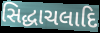
સિદ્ધાચલાદિ